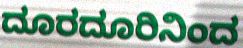
ದೂರದೂರಿನಿಂದ